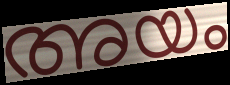
അയം